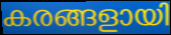
കരങ്ങളായി